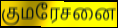
குமரேசனை